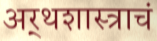
अर्थशास्त्राचं